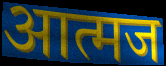
आत्मज